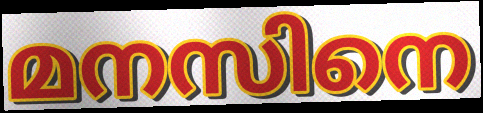
മനസിനെ